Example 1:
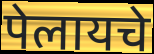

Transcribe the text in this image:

पेलायचे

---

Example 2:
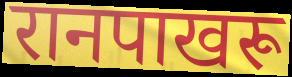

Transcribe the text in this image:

रानपाखरू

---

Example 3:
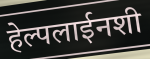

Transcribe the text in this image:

हेल्पलाईनशी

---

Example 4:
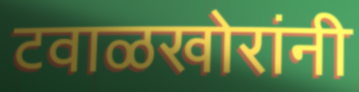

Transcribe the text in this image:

टवाळखोरांनी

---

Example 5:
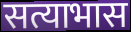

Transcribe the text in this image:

सत्याभास